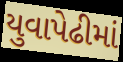
યુવાપેઢીમાં